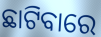
ଛାଟିବାରେ